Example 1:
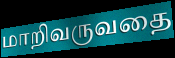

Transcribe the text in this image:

மாறிவருவதை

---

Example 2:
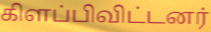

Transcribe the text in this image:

கிளப்பிவிட்டனர்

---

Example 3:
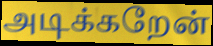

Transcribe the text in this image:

அடிக்கறேன்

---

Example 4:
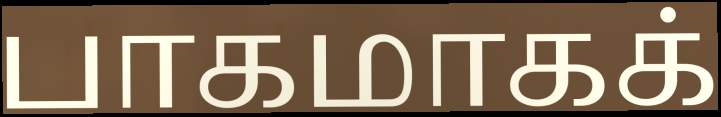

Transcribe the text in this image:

பாகமாகக்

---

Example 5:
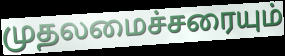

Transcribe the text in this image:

முதலமைச்சரையும்